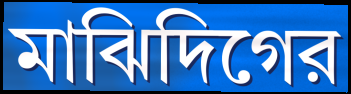
মাঝিদিগের